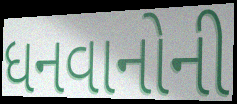
ધનવાનોની